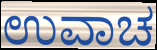
ಉವಾಚ